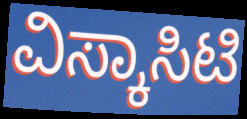
ವಿಸ್ಕಾಸಿಟಿ